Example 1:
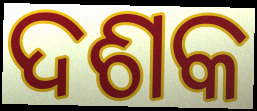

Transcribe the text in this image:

ଦଶକ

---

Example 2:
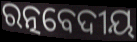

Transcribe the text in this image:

ରତ୍ନବେଦୀୟ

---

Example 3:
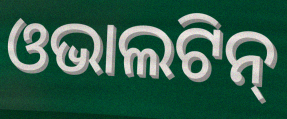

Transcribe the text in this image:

ଓଭାଲଟିନ୍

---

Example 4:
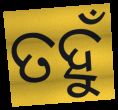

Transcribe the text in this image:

ତହୁଁ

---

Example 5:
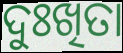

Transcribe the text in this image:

ଦୁଃଖିତା